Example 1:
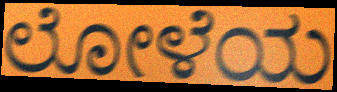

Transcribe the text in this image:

ಲೋಳೆಯ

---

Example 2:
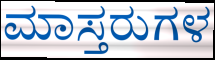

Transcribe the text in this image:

ಮಾಸ್ತರುಗಳ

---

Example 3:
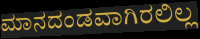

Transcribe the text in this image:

ಮಾನದಂಡವಾಗಿರಲಿಲ್ಲ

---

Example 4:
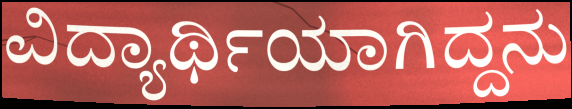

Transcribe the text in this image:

ವಿದ್ಯಾರ್ಥಿಯಾಗಿದ್ದನು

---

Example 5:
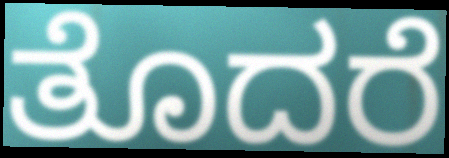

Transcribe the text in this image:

ತೊದರೆ